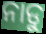
ନାଡୁ